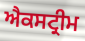
ਐਕਸਟ੍ਰੀਮ